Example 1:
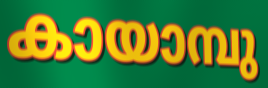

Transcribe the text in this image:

കായാമ്പു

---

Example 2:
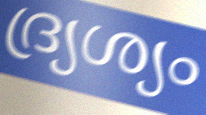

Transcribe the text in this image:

ദ്ര്യശ്യം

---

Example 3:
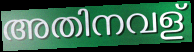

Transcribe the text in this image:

അതിനവള്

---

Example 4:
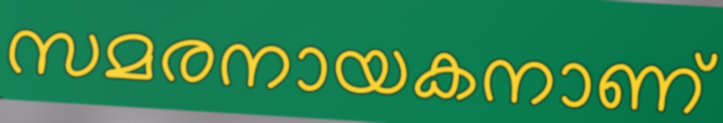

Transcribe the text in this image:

സമരനായകനാണ്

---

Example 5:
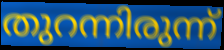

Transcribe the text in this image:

തുറന്നിരുന്ന്